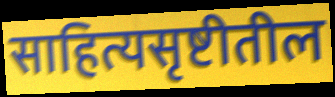
साहित्यसृष्टीतील